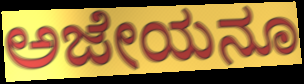
ಅಜೇಯನೂ